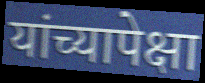
यांच्यापेक्षा